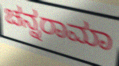
ಚನ್ನರಾಮಾ